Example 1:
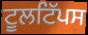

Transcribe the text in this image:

ਟੂਲਟਿੱਪਸ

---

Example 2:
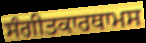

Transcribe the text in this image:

ਸੰਗੀਤਕਾਰਥਾਮਸ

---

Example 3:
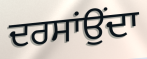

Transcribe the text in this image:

ਦਰਸਾਂਉਂਦਾ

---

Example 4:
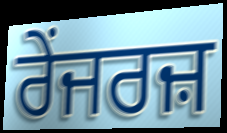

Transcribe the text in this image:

ਰੇਂਜਰਜ਼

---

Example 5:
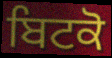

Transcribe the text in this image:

ਬਿਟਕੋ